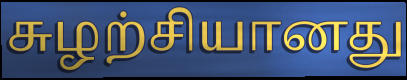
சுழற்சியானது